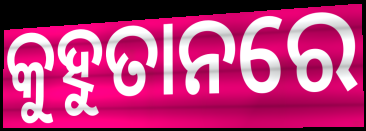
କୁହୁତାନରେ